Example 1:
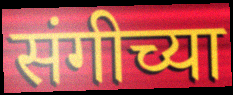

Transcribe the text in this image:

संगीच्या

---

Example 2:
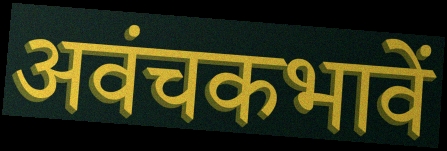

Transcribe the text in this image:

अवंचकभावें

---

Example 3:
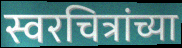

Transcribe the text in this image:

स्वरचित्रांच्या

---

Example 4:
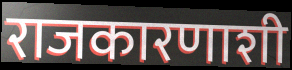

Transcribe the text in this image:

राजकारणाशी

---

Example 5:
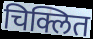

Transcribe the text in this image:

चिक्लित